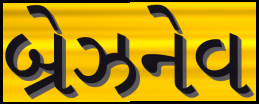
બ્રેઝનેવ